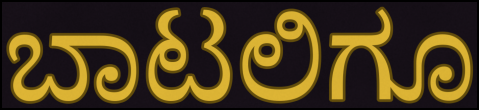
ಬಾಟಲಿಗೂ